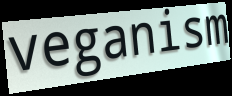
veganism